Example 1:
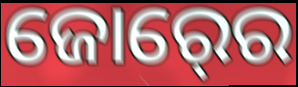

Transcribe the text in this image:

ଜୋର୍‍ରେ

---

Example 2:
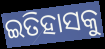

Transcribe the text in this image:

ଇତିହାସକୁ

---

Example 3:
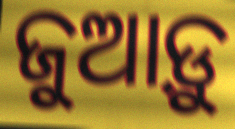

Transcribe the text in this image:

ଜୁଆଡ଼ୁ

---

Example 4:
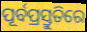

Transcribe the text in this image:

ପୂର୍ବପ୍ରସ୍ତୁତିରେ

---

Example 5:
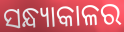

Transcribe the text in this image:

ସନ୍ଧ୍ୟାକାଳର